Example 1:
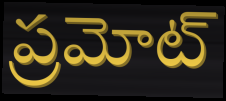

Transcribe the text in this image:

ప్రమోట్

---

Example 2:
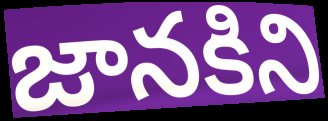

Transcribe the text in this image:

జానకిని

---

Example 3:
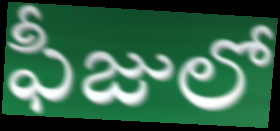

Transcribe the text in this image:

ఫీజులో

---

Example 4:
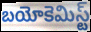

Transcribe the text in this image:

బయోకెమిస్ట్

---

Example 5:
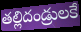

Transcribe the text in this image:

తల్లిదండ్రులకే